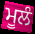
ਮੂਲੰ